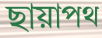
ছায়াপথ